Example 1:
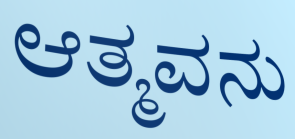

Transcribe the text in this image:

ಆತ್ಮವನು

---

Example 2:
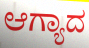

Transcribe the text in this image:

ಆಗ್ಯಾದ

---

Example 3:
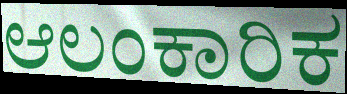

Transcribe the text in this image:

ಆಲಂಕಾರಿಕ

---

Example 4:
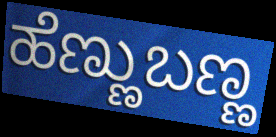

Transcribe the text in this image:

ಹೆಣ್ಣುಬಣ್ಣ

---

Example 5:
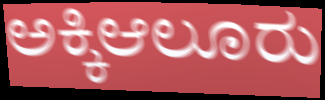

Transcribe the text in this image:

ಅಕ್ಕಿಆಲೂರು